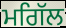
ਮਗਿੱਲ